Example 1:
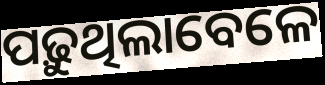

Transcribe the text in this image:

ପଢ଼ୁଥିଲାବେଳେ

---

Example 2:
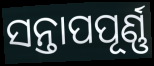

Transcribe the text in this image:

ସନ୍ତାପପୂର୍ଣ୍ଣ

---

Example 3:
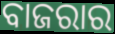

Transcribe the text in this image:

ବାଜରାର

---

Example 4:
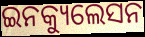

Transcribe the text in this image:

ଇନକ୍ୟୁଲେସନ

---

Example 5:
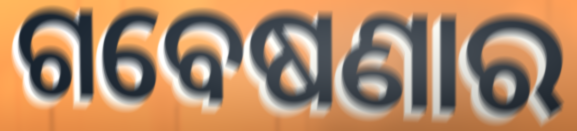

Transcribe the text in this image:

ଗବେଷଣାର